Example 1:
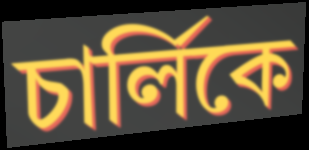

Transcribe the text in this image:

চার্লিকে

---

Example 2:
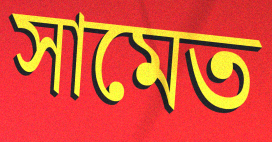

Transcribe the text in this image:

সামেত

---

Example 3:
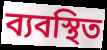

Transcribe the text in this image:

ব্যবস্থিত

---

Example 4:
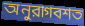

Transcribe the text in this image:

অনুরাগবশত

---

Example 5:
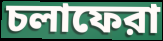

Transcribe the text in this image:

চলাফেরা